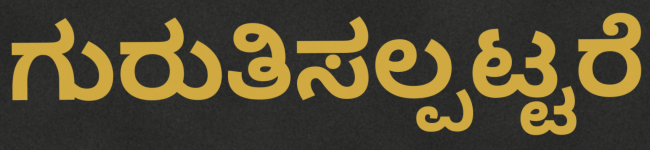
ಗುರುತಿಸಲ್ಪಟ್ಟರೆ